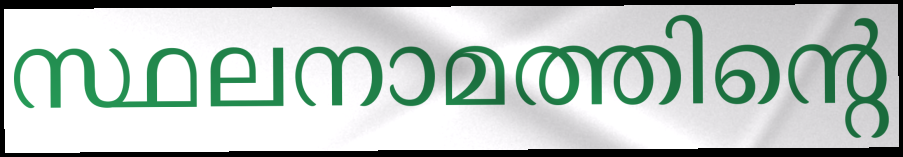
സ്ഥലനാമത്തിന്റെ